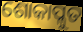
ଶୋକାପ୍ଳୁତ